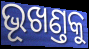
ଭୂଖଣ୍ତକୁ